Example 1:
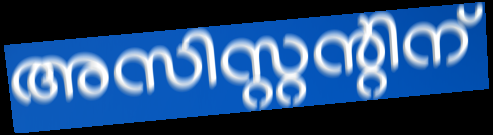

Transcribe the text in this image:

അസിസ്റ്റന്റിന്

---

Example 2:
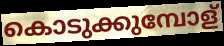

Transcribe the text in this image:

കൊടുക്കുമ്പോള്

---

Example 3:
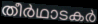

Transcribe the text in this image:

തീർഥാടകർ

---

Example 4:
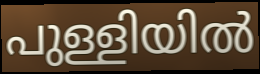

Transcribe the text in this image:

പുള്ളിയിൽ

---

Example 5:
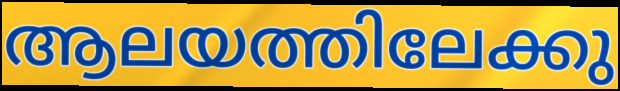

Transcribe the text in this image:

ആലയത്തിലേക്കു